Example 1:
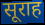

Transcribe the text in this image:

सूराह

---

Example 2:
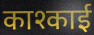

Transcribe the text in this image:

काश्काई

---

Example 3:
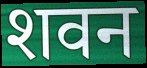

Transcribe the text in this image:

शवन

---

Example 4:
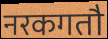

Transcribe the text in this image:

नरकगतौ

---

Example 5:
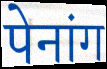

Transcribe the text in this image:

पेनांग